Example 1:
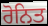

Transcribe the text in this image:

ਰੋਨਿਤ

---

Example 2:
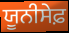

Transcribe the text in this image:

ਯੂਨੀਸੇਫ਼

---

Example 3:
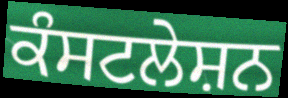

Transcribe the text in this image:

ਕੰਸਟਲੇਸ਼ਨ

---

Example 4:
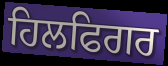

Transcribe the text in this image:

ਹਿਲਫਿਗਰ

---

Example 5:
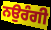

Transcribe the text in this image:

ਨਉਰੰਗੀ